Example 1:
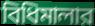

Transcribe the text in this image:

বিধিমালার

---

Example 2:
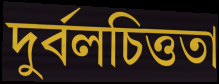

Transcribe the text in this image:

দুর্বলচিত্ততা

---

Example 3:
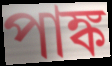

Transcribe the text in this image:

পাঙ্ক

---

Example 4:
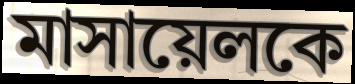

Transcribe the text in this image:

মাসায়েলকে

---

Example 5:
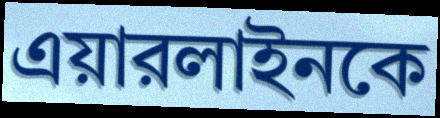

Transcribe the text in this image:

এয়ারলাইনকে